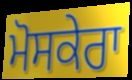
ਮੋਸਕੇਰਾ